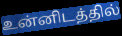
உன்னிடத்தில்